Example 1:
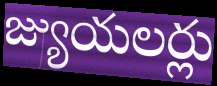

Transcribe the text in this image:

జ్యుయలర్లు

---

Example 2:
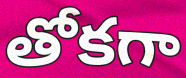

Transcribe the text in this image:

తోకగా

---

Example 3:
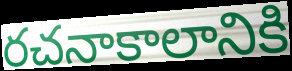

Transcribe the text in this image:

రచనాకాలానికి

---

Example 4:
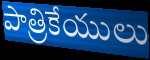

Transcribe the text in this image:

పాత్రికేయులు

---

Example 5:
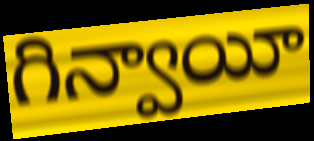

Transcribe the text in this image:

గిన్వాయీ